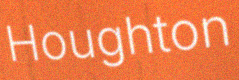
Houghton